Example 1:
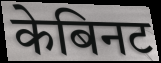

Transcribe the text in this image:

केबिनट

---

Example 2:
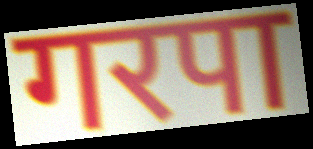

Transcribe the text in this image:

गरपा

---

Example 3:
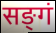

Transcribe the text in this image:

सङ्गं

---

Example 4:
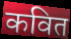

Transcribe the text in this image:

कवित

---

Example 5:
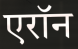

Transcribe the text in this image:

एरॉन